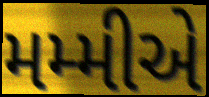
મમ્મીએ